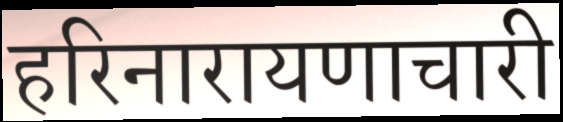
हरिनारायणाचारी